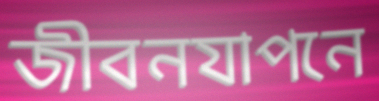
জীবনযাপনে